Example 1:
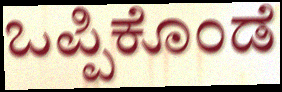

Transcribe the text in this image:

ಒಪ್ಪಿಕೊಂಡೆ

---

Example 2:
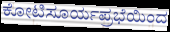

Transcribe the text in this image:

ಕೋಟಿಸೂರ್ಯಪ್ರಭೆಯಿಂದ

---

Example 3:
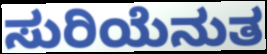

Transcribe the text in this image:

ಸುರಿಯೆನುತ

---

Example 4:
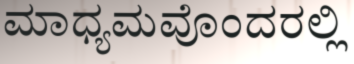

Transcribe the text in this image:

ಮಾಧ್ಯಮವೊಂದರಲ್ಲಿ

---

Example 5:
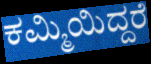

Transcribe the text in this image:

ಕಮ್ಮಿಯಿದ್ದರೆ